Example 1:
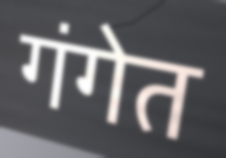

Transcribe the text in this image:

गंगेत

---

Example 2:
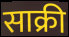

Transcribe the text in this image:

साक्री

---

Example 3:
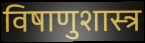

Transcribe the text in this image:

विषाणुशास्त्र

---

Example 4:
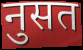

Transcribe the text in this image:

नुसत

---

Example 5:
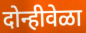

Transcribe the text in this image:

दोन्हीवेळा